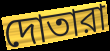
দোতারা